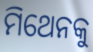
ମିଥେନକୁ